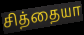
சித்தையா